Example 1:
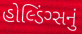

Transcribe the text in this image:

હોલ્ડિંગ્સનું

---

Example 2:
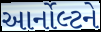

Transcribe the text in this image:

આર્નોલ્ટને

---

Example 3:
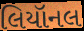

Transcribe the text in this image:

લિયૉનલ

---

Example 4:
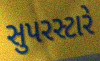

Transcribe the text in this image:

સુપરસ્ટારે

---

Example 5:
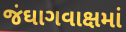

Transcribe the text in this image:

જંઘાગવાક્ષમાં